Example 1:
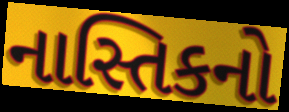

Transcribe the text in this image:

નાસ્તિકનો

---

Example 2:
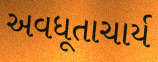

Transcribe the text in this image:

અવધૂતાચાર્ય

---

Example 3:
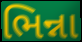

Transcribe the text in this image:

ભિન્ના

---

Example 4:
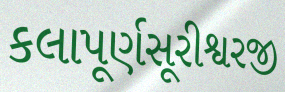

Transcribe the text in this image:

કલાપૂર્ણસૂરીશ્વરજી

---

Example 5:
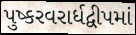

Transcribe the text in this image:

પુષ્કરવરાર્ધદ્વીપમાં